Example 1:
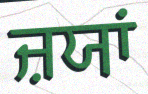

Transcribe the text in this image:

ਜ਼ਯਾਂ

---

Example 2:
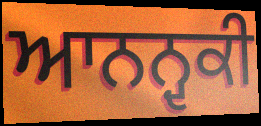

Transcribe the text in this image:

ਆਨਨ੍ਦਕੀ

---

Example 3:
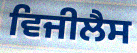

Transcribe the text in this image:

ਵਿਜੀਲੈਸ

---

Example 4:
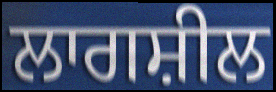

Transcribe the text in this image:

ਲਾਗਸ਼ੀਲ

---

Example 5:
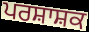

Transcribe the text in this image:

ਪਰਸ਼ਾਸ਼ਕ